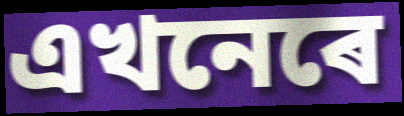
এখনেৰে